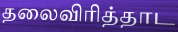
தலைவிரித்தாட